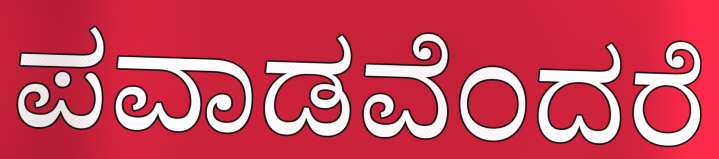
ಪವಾಡವೆಂದರೆ